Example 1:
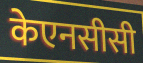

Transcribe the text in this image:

केएनसीसी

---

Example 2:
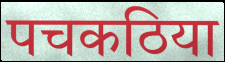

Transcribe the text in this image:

पचकठिया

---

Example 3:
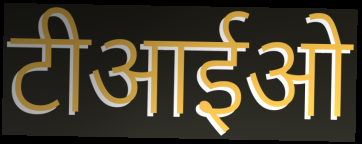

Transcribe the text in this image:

टीआईओ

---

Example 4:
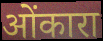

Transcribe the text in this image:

ओंकारा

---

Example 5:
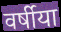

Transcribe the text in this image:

वर्षीया